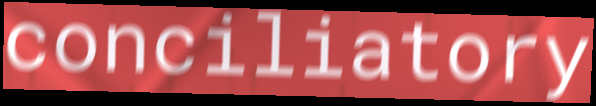
conciliatory